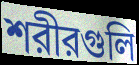
শরীরগুলি